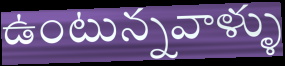
ఉంటున్నవాళ్ళు